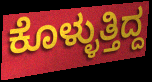
ಕೊಳ್ಳುತ್ತಿದ್ದ